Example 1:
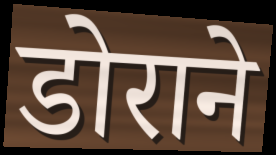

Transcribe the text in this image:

डोराने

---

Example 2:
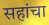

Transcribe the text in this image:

सहांचा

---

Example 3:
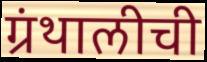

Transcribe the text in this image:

ग्रंथालीची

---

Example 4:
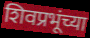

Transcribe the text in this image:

शिवप्रभूंच्या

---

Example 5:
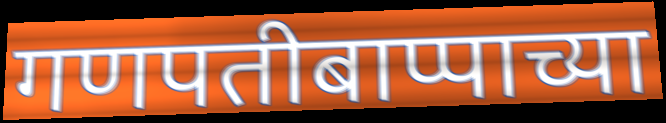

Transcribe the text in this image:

गणपतीबाप्पाच्या